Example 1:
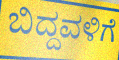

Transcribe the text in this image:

ಬಿದ್ದವಳಿಗೆ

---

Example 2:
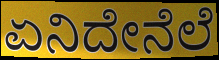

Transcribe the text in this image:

ಏನಿದೇನೆಲೆ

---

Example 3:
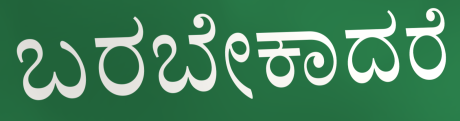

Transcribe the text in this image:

ಬರಬೇಕಾದರೆ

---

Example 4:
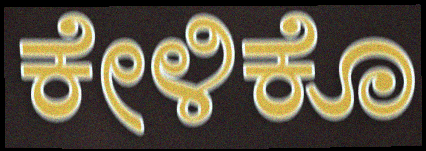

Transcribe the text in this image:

ಕೇಳಿಕೊ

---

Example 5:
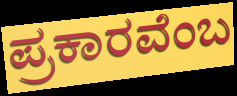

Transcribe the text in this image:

ಪ್ರಕಾರವೆಂಬ